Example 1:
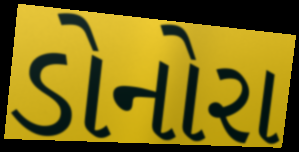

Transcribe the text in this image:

ડોનોરા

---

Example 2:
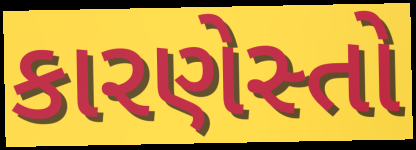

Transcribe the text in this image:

કારણેસ્તો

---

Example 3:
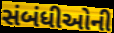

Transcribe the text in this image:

સંબંધીઓની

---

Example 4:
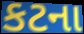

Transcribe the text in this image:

કટના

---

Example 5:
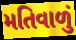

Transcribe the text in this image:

મતિવાળું